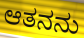
ಆತನನು